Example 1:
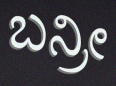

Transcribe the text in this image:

ಬನ್ರೀ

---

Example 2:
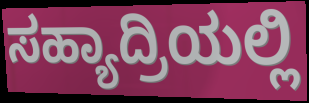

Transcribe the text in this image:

ಸಹ್ಯಾದ್ರಿಯಲ್ಲಿ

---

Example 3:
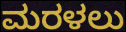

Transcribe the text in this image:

ಮರಳಲು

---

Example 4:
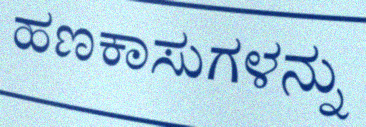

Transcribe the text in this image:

ಹಣಕಾಸುಗಳನ್ನು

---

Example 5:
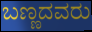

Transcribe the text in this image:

ಬಣ್ಣದವರು